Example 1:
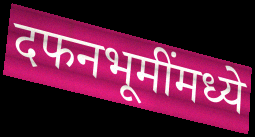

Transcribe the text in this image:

दफनभूमींमध्ये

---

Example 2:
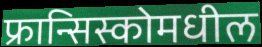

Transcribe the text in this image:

फ्रान्सिस्कोमधील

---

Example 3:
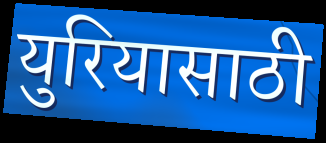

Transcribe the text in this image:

युरियासाठी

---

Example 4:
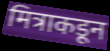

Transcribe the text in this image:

मित्राकडून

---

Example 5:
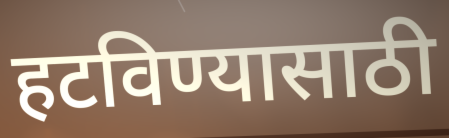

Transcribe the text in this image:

हटविण्यासाठी